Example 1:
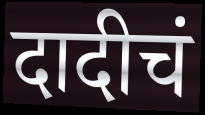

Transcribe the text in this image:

दादीचं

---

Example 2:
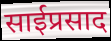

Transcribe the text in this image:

साईप्रसाद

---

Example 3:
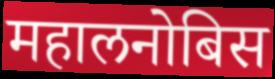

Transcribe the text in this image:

महालनोबिस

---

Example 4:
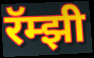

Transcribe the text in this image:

रॅम्झी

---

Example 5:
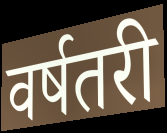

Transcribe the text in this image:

वर्षतरी